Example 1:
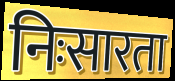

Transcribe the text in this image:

निःसारता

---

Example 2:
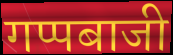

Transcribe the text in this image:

गप्पबाजी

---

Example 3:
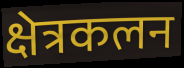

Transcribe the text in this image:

क्षेत्रकलन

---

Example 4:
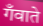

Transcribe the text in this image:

गँवाते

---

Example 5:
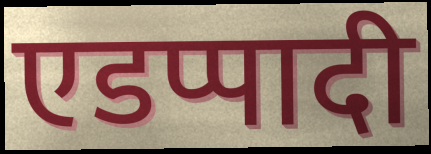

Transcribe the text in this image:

एडप्पादी